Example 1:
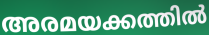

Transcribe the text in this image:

അരമയക്കത്തിൽ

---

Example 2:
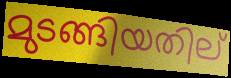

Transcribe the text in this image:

മുടങ്ങിയതില്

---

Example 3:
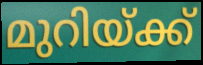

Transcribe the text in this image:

മുറിയ്ക്ക്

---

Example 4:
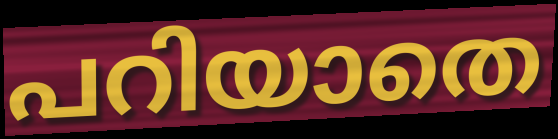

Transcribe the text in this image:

പറിയാതെ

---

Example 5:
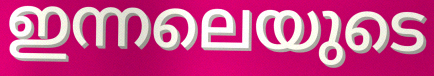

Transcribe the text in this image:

ഇന്നലെയുടെ